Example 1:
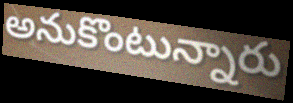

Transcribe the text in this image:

అనుకొంటున్నారు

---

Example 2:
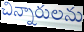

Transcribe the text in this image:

చిన్నారులను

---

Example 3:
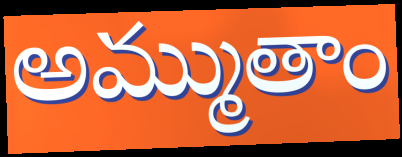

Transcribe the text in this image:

అమ్ముతాం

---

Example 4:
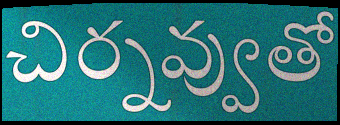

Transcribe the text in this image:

చిర్నవ్వుతో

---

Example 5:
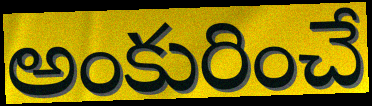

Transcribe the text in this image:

అంకురించే